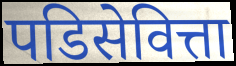
पडिसेवित्ता